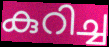
കുറിച്ച